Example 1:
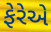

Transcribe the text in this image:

ફેરેએ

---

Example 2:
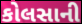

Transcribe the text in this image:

કોલસાની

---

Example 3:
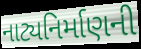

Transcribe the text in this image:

નાટ્યનિર્માણની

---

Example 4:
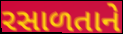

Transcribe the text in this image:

રસાળતાને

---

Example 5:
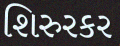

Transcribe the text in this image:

શિરુરકર